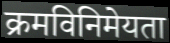
क्रमविनिमेयता